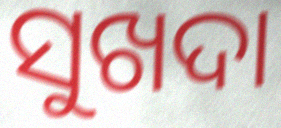
ସୁଖଦା